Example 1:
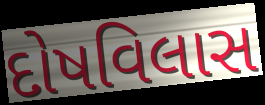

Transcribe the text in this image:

દોષવિલાસ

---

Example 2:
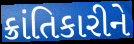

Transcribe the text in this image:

ક્રાંતિકારીને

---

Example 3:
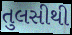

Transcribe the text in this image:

તુલસીથી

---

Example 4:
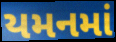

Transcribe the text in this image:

યમનમાં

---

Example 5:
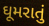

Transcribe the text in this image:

ઘૂમરાતું